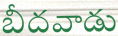
బీదవాడు